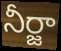
నీర్జా